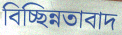
বিচ্ছিন্নতাবাদ